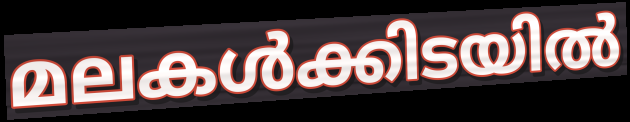
മലകൾക്കിടയിൽ